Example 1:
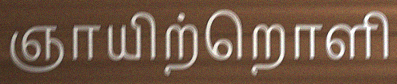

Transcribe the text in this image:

ஞாயிற்றொளி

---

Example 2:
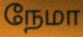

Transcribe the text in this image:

நேமா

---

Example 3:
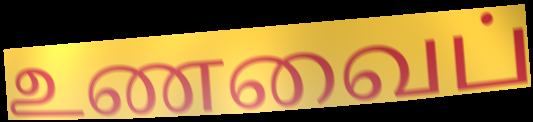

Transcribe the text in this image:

உணவைப்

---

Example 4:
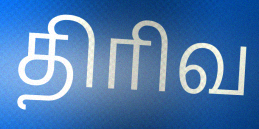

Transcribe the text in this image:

திரிவ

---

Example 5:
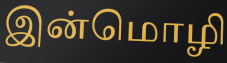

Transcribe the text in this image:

இன்மொழி